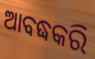
ଆବଦ୍ଧକରି